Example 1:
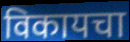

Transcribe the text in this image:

विकायचा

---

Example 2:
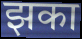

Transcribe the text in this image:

झका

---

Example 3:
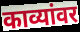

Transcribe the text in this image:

काव्यांवर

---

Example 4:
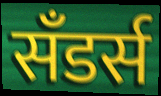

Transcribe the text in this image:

सॅंडर्स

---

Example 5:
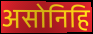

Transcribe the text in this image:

असोनिहि